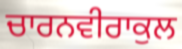
ਚਾਰਨਵੀਰਾਕੁਲ